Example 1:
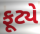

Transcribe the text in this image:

ફૂટ્યે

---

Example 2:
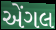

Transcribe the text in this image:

એંગલ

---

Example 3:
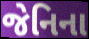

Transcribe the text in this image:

જેનિના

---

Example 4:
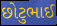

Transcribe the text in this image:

છોટુભાઈ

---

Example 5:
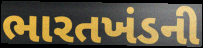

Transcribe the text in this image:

ભારતખંડની